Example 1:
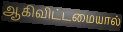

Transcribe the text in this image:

ஆகிவிட்டமையால்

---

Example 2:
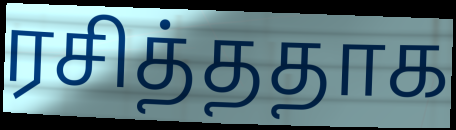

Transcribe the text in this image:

ரசித்ததாக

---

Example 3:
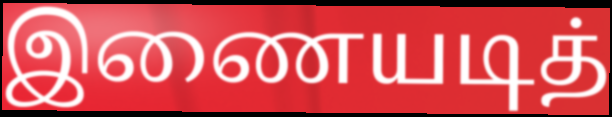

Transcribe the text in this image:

இணையடித்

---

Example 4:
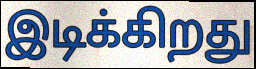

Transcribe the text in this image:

இடிக்கிறது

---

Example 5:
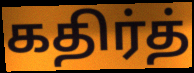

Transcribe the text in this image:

கதிர்த்